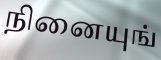
நினையுங்